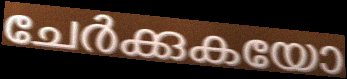
ചേർക്കുകയോ